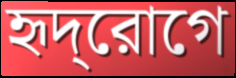
হৃদ্‌রোগে